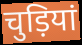
चुड़ियां